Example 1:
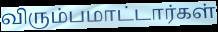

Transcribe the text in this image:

விரும்பமாட்டார்கள்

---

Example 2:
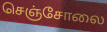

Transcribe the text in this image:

செஞ்சோலை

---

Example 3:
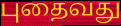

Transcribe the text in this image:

புதைவது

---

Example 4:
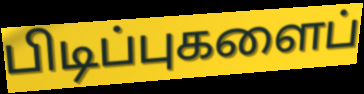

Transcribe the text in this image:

பிடிப்புகளைப்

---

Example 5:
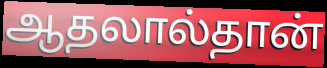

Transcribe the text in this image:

ஆதலால்தான்